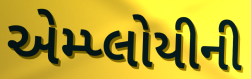
એમ્પ્લોયીની